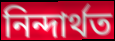
নিন্দাৰ্থত